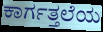
ಕಾರ್ಗತ್ತಲೆಯ